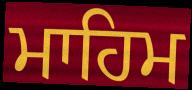
ਮਾਹਿਮ